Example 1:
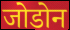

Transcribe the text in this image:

जोडोन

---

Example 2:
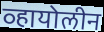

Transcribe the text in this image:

व्हायोलीन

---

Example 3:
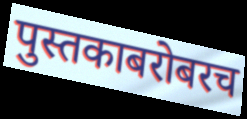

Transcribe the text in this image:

पुस्तकाबरोबरच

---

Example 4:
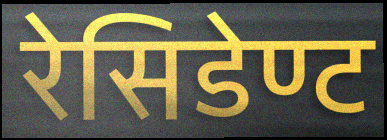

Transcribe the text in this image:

रेसिडेण्ट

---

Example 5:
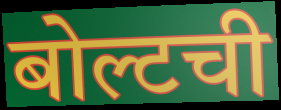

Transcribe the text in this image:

बोल्टची